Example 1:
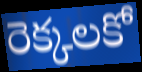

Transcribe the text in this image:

రెక్కలకో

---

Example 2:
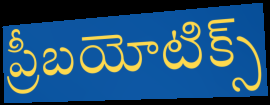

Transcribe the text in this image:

ప్రీబయోటిక్స్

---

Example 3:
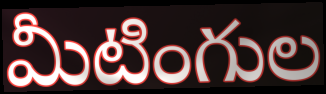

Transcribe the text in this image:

మీటింగుల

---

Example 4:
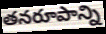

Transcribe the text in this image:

తనరూపాన్ని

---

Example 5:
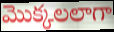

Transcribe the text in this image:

మొక్కలలాగా